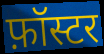
फ़ॉस्टर